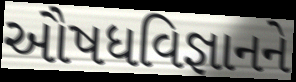
ઔષધવિજ્ઞાનને